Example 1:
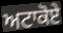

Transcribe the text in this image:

ਅਟਾਕੋਏ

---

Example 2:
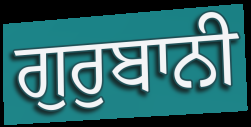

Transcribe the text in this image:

ਗੁਰੁਬਾਨੀ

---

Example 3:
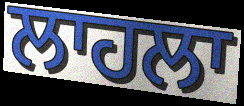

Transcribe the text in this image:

ਲਾਹਲਾ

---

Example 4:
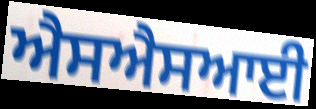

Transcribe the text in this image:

ਐਸਐਸਆਈ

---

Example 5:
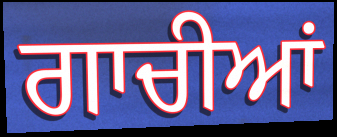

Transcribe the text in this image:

ਗਾਚੀਆਂ